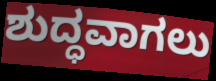
ಶುದ್ಧವಾಗಲು